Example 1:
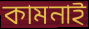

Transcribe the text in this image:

কামনাই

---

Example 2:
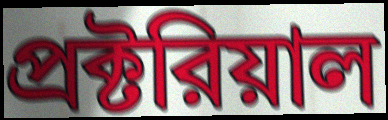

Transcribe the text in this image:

প্রক্টরিয়াল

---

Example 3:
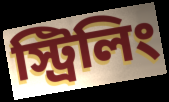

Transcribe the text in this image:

স্ট্রিলিং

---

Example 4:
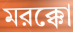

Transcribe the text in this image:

মরক্কো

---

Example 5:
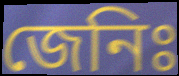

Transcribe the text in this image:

জেনিঃ